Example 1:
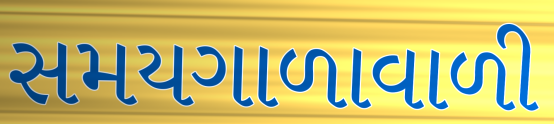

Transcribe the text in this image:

સમયગાળાવાળી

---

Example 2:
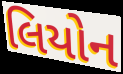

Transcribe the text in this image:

લિયોન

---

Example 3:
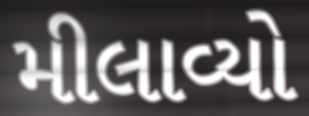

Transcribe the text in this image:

મીલાવ્યો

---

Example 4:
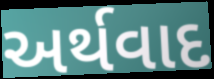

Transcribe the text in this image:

અર્થવાદ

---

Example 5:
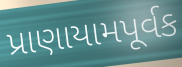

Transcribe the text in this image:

પ્રાણાયામપૂર્વક